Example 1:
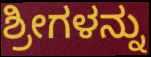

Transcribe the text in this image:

ಶ್ರೀಗಳನ್ನು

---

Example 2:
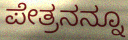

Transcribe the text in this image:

ಪೇತ್ರನನ್ನೂ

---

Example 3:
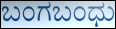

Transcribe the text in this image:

ಬಂಗಬಂಧು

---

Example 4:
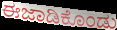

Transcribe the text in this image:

ಈಜಾಡಿಕೊಂಡು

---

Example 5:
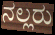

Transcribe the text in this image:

ನಲ್ಲರು